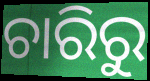
ଚାରିରୁ